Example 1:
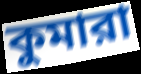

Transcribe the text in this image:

কুমারা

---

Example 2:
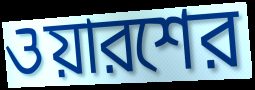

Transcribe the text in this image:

ওয়ারশের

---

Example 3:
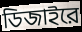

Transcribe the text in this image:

ডিজাইরে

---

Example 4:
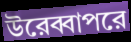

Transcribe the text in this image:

উরেব্বাপরে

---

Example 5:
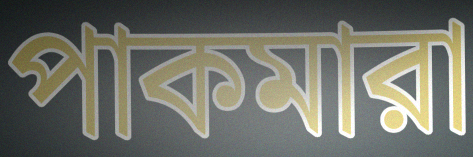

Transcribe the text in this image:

পাকমারা